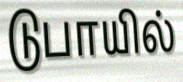
டுபாயில்